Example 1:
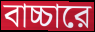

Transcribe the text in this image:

বাচ্চারে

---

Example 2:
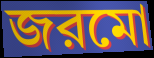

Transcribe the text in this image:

জরমো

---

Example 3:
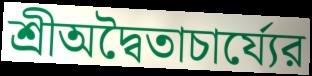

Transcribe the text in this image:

শ্রীঅদ্বৈতাচার্য্যের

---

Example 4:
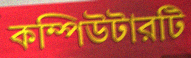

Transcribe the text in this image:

কম্পিউটারটি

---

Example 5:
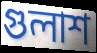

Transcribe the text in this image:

গুলাশ